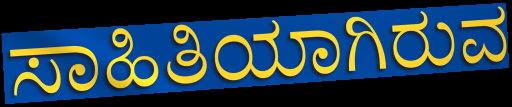
ಸಾಹಿತಿಯಾಗಿರುವ